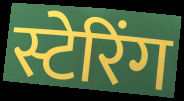
स्टेरिंग